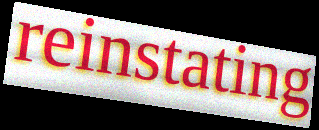
reinstating